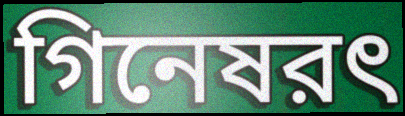
গিনেষরৎ